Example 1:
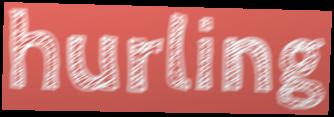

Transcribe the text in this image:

hurling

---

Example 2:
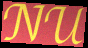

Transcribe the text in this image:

NU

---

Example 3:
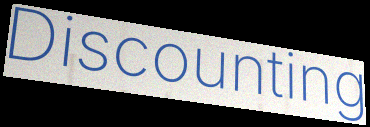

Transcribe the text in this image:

Discounting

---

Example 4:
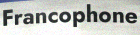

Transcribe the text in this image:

Francophone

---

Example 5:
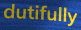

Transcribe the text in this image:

dutifully